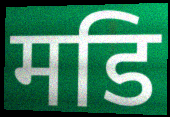
मडि